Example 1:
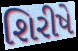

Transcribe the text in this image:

શિરીષે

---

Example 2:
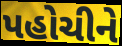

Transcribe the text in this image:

પહોચીને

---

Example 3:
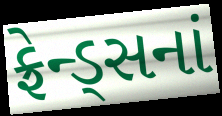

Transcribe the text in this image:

ફ્રેન્ડ્સનાં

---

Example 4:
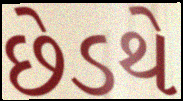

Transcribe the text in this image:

છેડથે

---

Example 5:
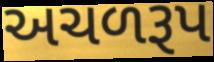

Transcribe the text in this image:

અચળરૂપ